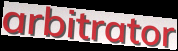
arbitrator